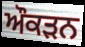
ਔਕੜਨ